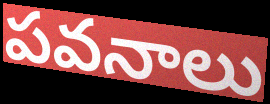
పవనాలు